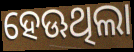
ହେଊଥିଲା